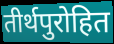
तीर्थपुरोहित